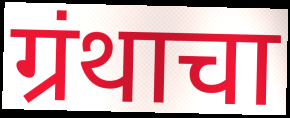
ग्रंथाचा